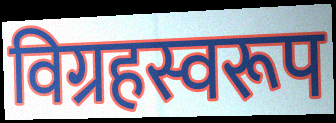
विग्रहस्वरूप